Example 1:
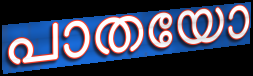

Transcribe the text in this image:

പാതയോ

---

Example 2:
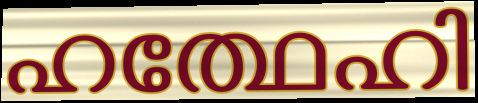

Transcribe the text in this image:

ഹത്ഥേഹി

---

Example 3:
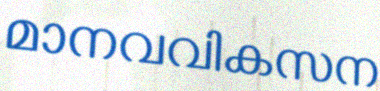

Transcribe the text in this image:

മാനവവികസന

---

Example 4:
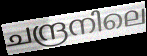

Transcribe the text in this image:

ചന്ദ്രനിലെ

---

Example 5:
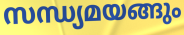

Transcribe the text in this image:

സന്ധ്യമയങ്ങും